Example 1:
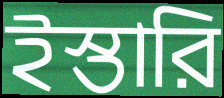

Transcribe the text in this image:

ইস্তারি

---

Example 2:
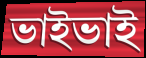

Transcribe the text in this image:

ভাইভাই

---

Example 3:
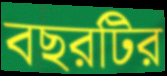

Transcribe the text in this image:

বছরটির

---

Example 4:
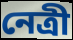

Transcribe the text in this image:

নেত্রী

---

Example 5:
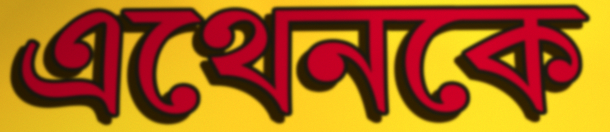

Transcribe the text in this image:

এথেনকে